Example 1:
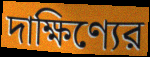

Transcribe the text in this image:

দাক্ষিণ্যের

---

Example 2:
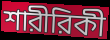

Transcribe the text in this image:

শারীরিকী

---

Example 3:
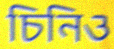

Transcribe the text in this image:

চিনিও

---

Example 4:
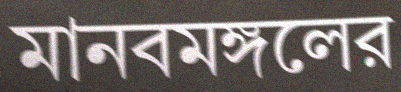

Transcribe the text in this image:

মানবমঙ্গলের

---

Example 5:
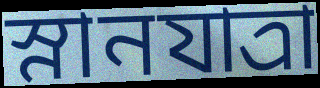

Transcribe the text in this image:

স্নানযাত্রা